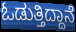
ಓಡುತ್ತಿದ್ದಾನೆ